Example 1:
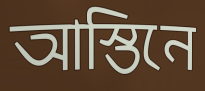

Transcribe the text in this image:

আস্তিনে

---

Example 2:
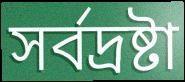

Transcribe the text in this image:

সর্বদ্রষ্টা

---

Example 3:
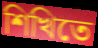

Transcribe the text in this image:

শিখিতে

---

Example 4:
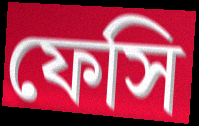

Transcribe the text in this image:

ফেসি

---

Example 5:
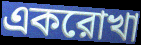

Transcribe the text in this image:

একরোখা